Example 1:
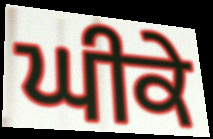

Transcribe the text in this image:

ਘੀਕੇ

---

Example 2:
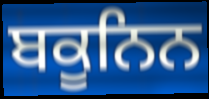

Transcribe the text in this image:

ਬਕੂਨਿਨ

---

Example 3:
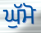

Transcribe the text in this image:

ਘੁੱਮੋ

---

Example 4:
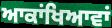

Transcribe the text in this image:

ਆਕਾਂਖਿਆਵਾਂ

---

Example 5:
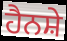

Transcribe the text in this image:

ਹੈਨਸ਼ੇ